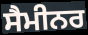
ਸੈਮੀਨਰ